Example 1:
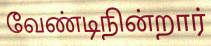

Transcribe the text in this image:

வேண்டிநின்றார்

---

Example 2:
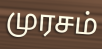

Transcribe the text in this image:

முரசம்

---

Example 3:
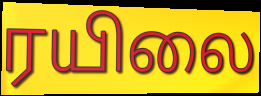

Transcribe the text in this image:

ரயிலை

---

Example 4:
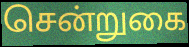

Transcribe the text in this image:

சென்றுகை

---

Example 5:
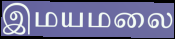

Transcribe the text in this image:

இமயமலை